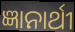
ଜ୍ଞାନାର୍ଥୀ